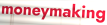
moneymaking